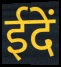
ईदें